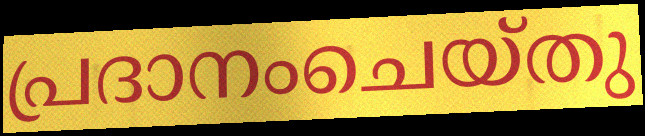
പ്രദാനംചെയ്തു